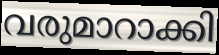
വരുമാറാക്കി